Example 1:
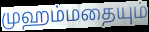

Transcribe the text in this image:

முஹம்மதையும்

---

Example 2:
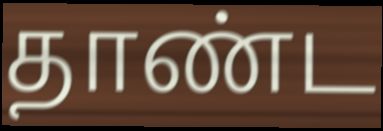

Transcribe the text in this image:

தாண்ட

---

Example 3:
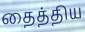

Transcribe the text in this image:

தைத்திய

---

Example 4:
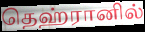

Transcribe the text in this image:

தெஹ்ரானில்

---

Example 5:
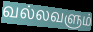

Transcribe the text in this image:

வல்லவளும்